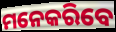
ମନେକରିବେ